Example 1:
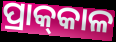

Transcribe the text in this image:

ପ୍ରାକ୍‌କାଳ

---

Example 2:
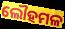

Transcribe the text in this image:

ଲୌହମଳ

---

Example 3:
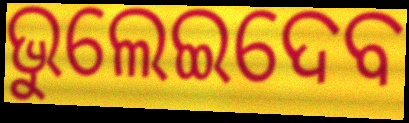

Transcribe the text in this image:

ଭୁଲେଇଦେବ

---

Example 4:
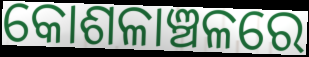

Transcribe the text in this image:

କୋଶଳାଞ୍ଚଳରେ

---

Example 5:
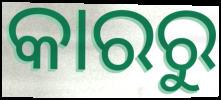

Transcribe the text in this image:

କାରରୁ